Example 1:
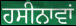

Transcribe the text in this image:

ਹਸੀਨਾਵਾਂ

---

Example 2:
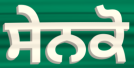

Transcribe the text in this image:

ਸੇਨਕੋ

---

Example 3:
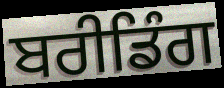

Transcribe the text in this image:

ਬਰੀਡਿੰਗ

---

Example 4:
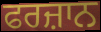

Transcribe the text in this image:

ਫਰਜ਼ਾਨ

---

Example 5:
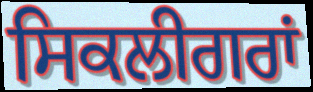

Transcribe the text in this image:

ਸਿਕਲੀਗਰਾਂ